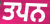
ਤਪਨ